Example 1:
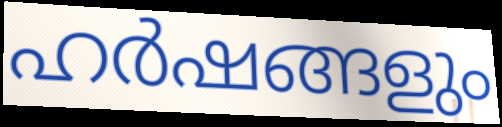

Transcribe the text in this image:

ഹർഷങ്ങളും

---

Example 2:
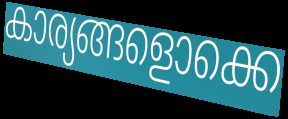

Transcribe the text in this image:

കാര്യങ്ങളൊക്കെ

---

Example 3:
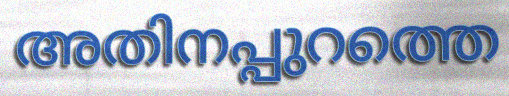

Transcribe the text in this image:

അതിനപ്പുറത്തെ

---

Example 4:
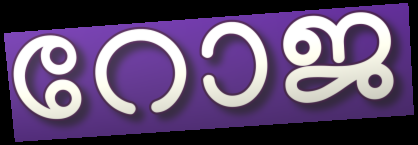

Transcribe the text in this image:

റോജ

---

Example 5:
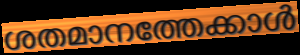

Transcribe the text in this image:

ശതമാനത്തേക്കാൾ